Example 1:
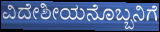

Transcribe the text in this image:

ವಿದೇಶೀಯನೊಬ್ಬನಿಗೆ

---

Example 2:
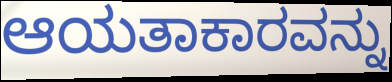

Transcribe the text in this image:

ಆಯತಾಕಾರವನ್ನು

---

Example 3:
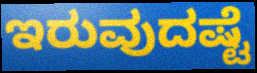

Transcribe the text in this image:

ಇರುವುದಷ್ಟೆ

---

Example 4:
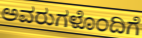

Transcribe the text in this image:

ಅವರುಗಳೊಂದಿಗೆ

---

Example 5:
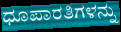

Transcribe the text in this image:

ಧೂಪಾರತಿಗಳನ್ನು